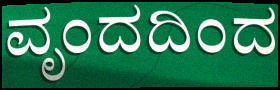
ವೃಂದದಿಂದ